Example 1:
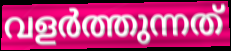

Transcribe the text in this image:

വളർത്തുന്നത്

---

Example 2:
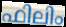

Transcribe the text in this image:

ഫിലിം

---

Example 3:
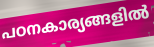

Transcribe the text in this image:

പഠനകാര്യങ്ങളിൽ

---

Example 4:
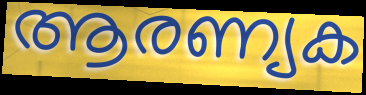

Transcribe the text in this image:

ആരണ്യക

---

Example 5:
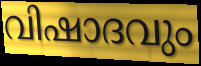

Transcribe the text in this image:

വിഷാദവും